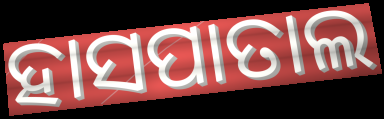
ହାସପାତାଲ